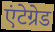
एंटेग्रेड